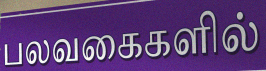
பலவகைகளில்